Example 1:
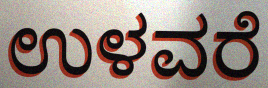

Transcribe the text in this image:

ಉಳವರೆ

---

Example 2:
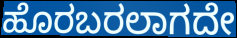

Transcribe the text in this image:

ಹೊರಬರಲಾಗದೇ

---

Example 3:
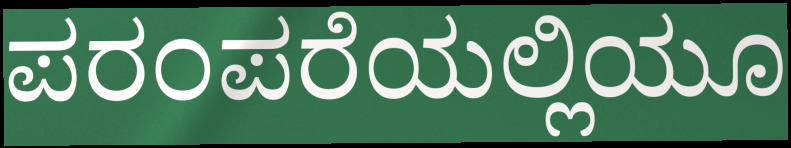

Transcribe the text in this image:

ಪರಂಪರೆಯಲ್ಲಿಯೂ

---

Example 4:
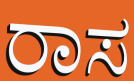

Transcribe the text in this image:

ರಾಸ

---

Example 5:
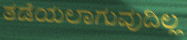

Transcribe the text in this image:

ತಡೆಯಲಾಗುವುದಿಲ್ಲ